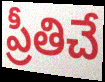
ప్రీతిచే